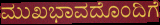
ಮುಖಭಾವದೊಂದಿಗೆ